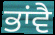
ਭਾਂਵੈ